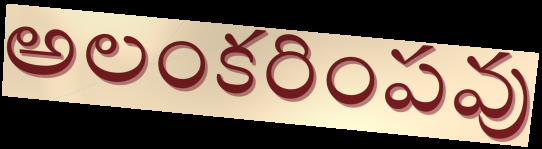
అలంకరింపవు